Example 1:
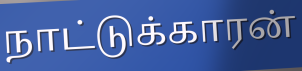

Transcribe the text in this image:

நாட்டுக்காரன்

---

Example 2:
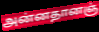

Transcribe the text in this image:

அன்னதானஞ்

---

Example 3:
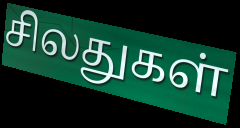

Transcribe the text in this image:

சிலதுகள்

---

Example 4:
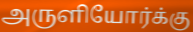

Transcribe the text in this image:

அருளியோர்க்கு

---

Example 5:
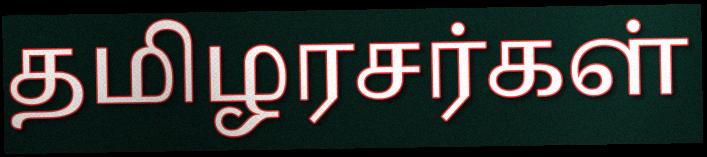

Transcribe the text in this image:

தமிழரசர்கள்